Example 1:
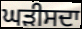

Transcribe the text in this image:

ਘੜੀਸਦਾ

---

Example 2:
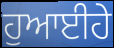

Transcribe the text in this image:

ਹੁਆਈਹੇ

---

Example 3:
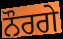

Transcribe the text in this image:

ਨੌਰਗੇ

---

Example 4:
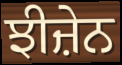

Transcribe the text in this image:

ਝੀਜ਼ੇਨ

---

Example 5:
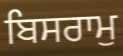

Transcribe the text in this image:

ਬਿਸਰਾਮੁ